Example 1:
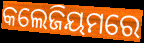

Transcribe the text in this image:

କଲେଜିୟମରେ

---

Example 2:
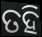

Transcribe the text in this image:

ତହି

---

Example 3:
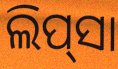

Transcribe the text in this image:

ଲିପ୍‌ସା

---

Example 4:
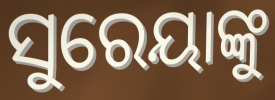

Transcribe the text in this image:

ସୁରେୟାଙ୍କୁ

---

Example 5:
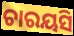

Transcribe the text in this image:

ଚାରୟସି